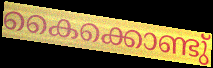
കൈക്കൊണ്ടു്